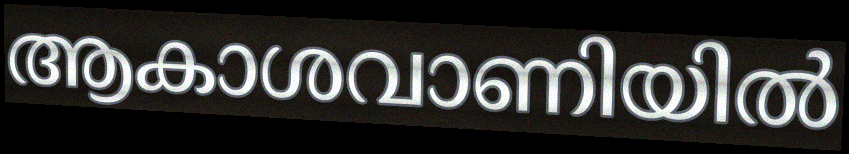
ആകാശവാണിയിൽ